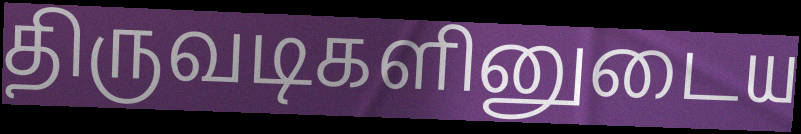
திருவடிகளினுடைய